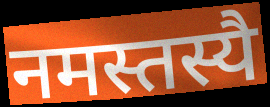
नमस्तस्यै